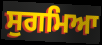
ਸੁਗਮਿਆ